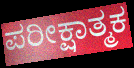
ಪರೀಕ್ಷಾತ್ಮಕ